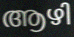
ആഴി